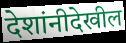
देशांनीदेखील